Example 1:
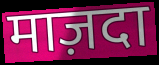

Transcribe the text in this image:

माज़दा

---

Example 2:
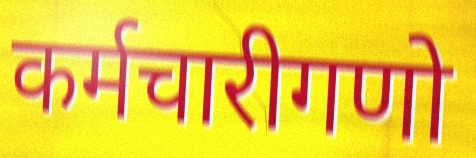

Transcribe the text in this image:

कर्मचारीगणो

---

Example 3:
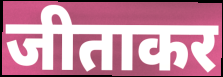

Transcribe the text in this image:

जीताकर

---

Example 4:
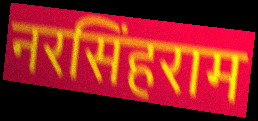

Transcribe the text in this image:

नरसिंहराम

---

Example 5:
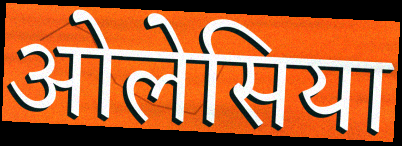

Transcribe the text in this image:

ओलेसिया